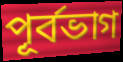
পূর্বভাগ